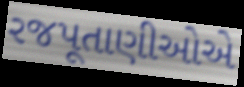
રજપૂતાણીઓએ